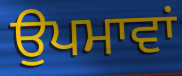
ਉਪਮਾਵਾਂ